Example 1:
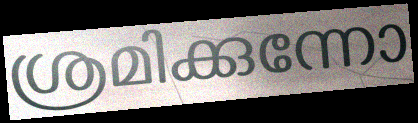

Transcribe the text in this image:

ശ്രമിക്കുന്നോ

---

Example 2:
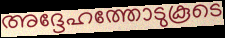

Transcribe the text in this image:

അദ്ദേഹത്തോടുകൂടെ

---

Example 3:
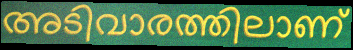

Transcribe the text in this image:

അടിവാരത്തിലാണ്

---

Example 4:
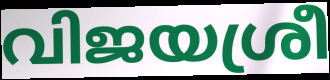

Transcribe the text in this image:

വിജയശ്രീ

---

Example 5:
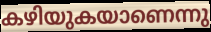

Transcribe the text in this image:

കഴിയുകയാണെന്നു